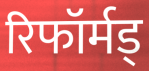
रिफॉर्मड्